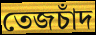
তেজচাঁদ